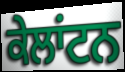
ਕੇਲਾਂਟਨ